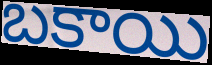
బకాయి